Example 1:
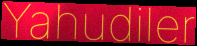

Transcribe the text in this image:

Yahudiler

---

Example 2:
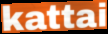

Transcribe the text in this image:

kattai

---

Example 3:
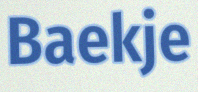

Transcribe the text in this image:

Baekje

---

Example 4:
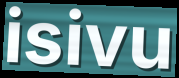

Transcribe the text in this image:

isivu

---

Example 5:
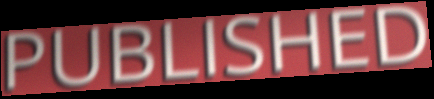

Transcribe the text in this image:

PUBLISHED